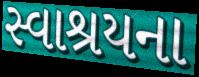
સ્વાશ્રયના